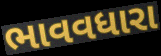
ભાવવધારા